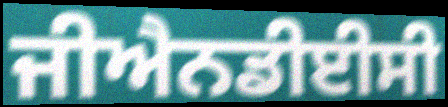
ਜੀਐਨਡੀਈਸੀ